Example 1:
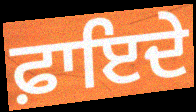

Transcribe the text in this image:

ਫ਼ਾਇਦੇ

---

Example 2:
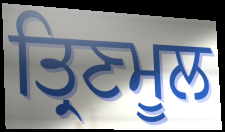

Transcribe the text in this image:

ਤ੍ਰਿਣਮੂਲ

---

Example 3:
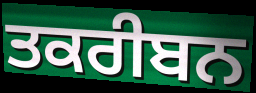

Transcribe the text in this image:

ਤਕਰੀਬਨ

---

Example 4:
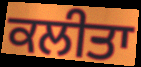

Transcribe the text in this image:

ਕਲੀਤਾ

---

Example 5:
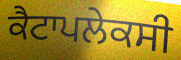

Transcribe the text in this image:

ਕੈਟਾਪਲੇਕਸੀ